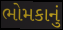
ભોમકાનું